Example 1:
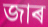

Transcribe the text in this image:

জাৰ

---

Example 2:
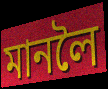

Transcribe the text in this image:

মানলৈ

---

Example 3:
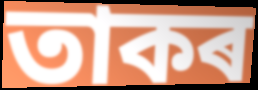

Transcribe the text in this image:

তাকৰ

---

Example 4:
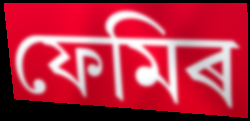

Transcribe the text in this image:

ফেমিৰ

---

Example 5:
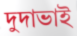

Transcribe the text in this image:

দুদাভাই